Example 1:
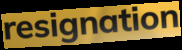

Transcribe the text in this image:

resignation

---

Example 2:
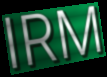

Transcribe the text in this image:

IRM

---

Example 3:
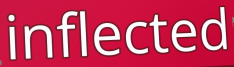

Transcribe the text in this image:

inflected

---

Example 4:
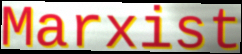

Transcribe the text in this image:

Marxist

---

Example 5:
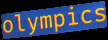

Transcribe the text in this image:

olympics